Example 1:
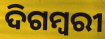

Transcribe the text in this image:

ଦିଗମ୍ୱରୀ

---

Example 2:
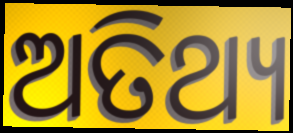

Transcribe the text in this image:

ଅତିଥ୍ୟ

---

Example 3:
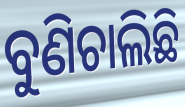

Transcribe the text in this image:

ବୁଣିଚାଲିଛି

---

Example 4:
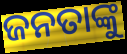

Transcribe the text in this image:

ଜନତାଙ୍କୁ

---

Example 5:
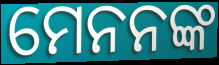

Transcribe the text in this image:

ମେନନଙ୍କ